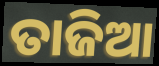
ତାଜିଆ